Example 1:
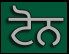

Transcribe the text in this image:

ਟੋਨ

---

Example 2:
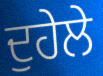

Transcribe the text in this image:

ਦੁਹੇਲੇ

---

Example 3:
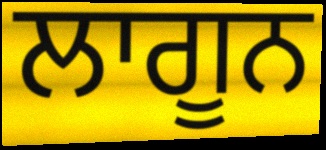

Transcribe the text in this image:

ਲਾਗੂਨ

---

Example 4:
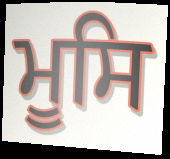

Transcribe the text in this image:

ਮੂਸਿ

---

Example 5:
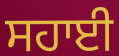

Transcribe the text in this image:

ਸਹਾਈ